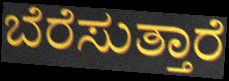
ಬೆರೆಸುತ್ತಾರೆ